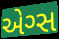
એગ્સ